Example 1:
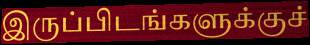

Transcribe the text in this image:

இருப்பிடங்களுக்குச்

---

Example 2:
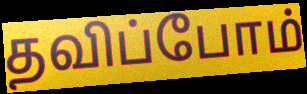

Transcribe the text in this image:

தவிப்போம்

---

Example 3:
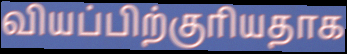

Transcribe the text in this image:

வியப்பிற்குரியதாக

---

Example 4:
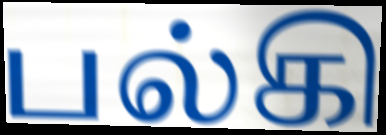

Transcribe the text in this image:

பல்கி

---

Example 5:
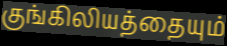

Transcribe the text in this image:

குங்கிலியத்தையும்